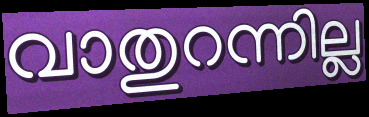
വാതുറന്നില്ല